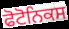
ਫੋਟੋਨਿਕਸ